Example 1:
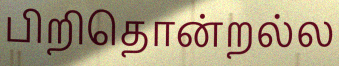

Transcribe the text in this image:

பிறிதொன்றல்ல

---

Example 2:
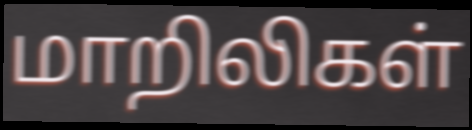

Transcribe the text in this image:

மாறிலிகள்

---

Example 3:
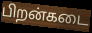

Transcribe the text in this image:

பிறன்கடை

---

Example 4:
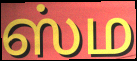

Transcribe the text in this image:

ஸ்ம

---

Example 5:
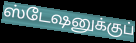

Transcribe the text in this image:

ஸ்டேஷனுக்குப்